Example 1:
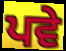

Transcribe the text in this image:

ਪਵੇ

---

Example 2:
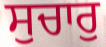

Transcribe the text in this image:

ਸੁਚਾਰੁ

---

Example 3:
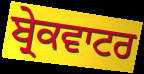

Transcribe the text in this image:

ਬ੍ਰੇਕਵਾਟਰ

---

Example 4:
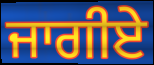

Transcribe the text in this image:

ਜਾਗੀਏ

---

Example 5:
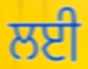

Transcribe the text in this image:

ਲਈ